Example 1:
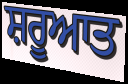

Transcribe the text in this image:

ਸ਼ਰੂਆਤ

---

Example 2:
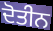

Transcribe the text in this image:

ਦੋਤੀਨ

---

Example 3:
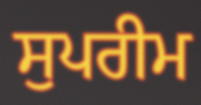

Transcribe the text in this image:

ਸੁਪਰੀਮ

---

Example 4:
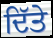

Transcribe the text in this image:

ਦਿੱਤੇ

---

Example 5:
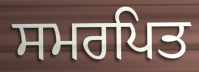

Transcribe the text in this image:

ਸਮਰਪਿਤ